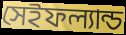
সেইফল্যান্ড